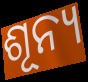
ଶୂନ୍ୟ